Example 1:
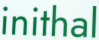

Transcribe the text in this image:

inithal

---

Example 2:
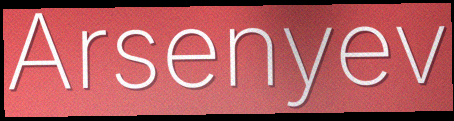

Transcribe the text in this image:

Arsenyev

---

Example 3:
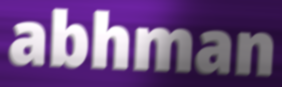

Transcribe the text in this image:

abhman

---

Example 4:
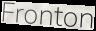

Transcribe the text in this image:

Fronton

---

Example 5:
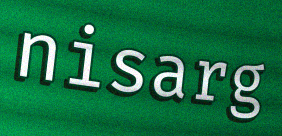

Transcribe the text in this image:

nisarg